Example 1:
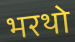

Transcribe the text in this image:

भरथो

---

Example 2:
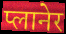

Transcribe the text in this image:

प्लानेर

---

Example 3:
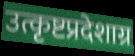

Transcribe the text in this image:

उत्कृष्टप्रदेशाग्र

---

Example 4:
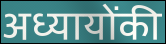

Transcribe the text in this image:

अध्यायोंकी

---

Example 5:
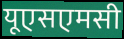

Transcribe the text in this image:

यूएसएमसी